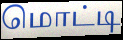
மொட்டி